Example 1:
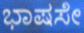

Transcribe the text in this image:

ಭಾಷಸೇ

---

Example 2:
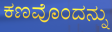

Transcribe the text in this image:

ಕಣವೊಂದನ್ನು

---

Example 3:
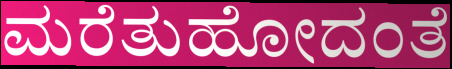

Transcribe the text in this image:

ಮರೆತುಹೋದಂತೆ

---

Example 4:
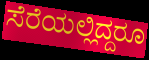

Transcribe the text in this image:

ಸೆರೆಯಲ್ಲಿದ್ದರೂ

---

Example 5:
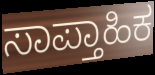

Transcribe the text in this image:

ಸಾಪ್ತಾಹಿಕ